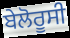
ਬੇਲੋਰੂਸੀ